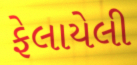
ફેલાયેલી